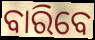
ବାରିବେ